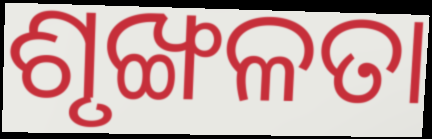
ଶୃଙ୍ଖଳତା